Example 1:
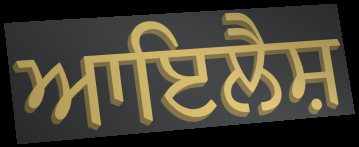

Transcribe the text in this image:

ਆਇਲੈਸ਼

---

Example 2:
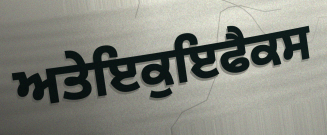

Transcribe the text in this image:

ਅਤੇਇਕੁਇਫੈਕਸ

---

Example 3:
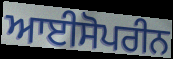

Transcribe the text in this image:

ਆਈਸੋਪਰੀਨ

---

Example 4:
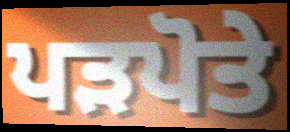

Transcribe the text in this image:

ਪੜਪੋਤੇ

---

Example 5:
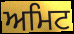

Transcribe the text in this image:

ਅਮਿਟ